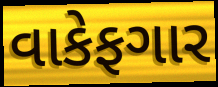
વાકેફગાર